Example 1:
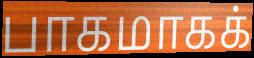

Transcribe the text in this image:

பாகமாகக்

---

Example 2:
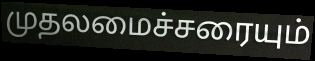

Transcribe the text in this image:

முதலமைச்சரையும்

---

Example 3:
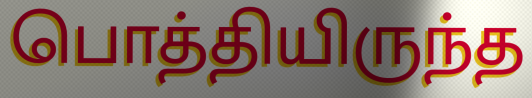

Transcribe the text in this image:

பொத்தியிருந்த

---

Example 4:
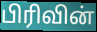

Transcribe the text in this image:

பிரிவின்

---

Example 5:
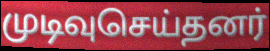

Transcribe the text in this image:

முடிவுசெய்தனர்